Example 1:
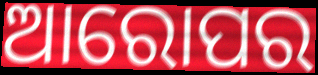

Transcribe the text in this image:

ଆରୋପର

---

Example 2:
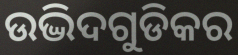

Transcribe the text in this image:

ଉଦ୍ଭିଦଗୁଡିକର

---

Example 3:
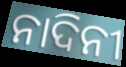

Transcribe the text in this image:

ନାଦିନୀ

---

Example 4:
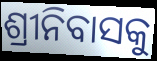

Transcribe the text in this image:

ଶ୍ରୀନିବାସକୁ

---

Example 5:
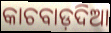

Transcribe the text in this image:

କାଚବାଡ଼ଦିଆ